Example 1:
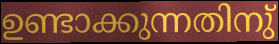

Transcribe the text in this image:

ഉണ്ടാക്കുന്നതിനു്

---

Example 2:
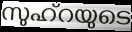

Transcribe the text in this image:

സുഹ്റയുടെ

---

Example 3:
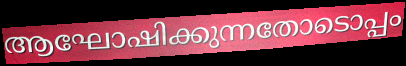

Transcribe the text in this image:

ആഘോഷിക്കുന്നതോടൊപ്പം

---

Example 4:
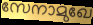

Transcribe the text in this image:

സേനാമുഖേ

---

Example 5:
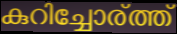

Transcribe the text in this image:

കുറിച്ചോര്ത്ത്